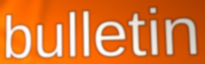
bulletin